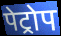
पेट्रोप